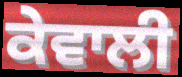
ਕੇਵਾਲੀ